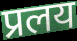
प्रलय